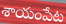
శాయంపేట